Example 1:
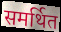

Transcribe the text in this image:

समर्थित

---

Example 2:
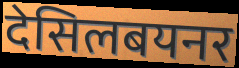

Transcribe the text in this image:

देसिलबयनर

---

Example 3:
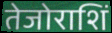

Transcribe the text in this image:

तेजोराशिं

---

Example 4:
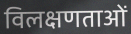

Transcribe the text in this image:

विलक्षणताओं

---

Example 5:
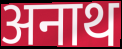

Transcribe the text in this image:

अनाथ